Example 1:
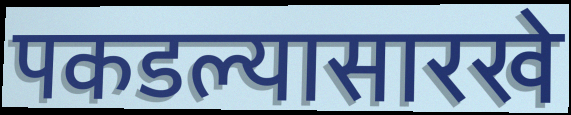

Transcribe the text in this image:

पकडल्यासारखे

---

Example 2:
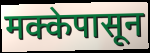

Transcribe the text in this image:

मक्केपासून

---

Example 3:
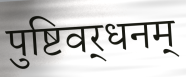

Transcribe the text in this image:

पुष्टिवर्धनम्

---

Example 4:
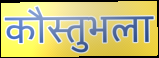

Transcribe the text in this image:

कौस्तुभला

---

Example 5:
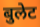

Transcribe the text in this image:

बुलेट